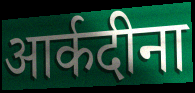
आर्कदीना